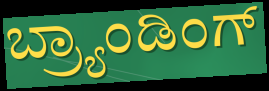
ಬ್ರ್ಯಾಂಡಿಂಗ್